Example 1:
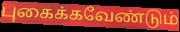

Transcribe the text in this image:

புகைக்கவேண்டும்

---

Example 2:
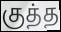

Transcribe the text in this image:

குத்த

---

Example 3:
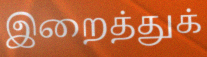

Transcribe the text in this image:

இறைத்துக்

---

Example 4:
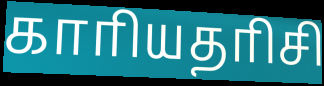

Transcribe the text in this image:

காரியதரிசி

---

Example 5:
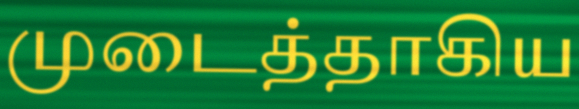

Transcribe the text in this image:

முடைத்தாகிய